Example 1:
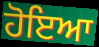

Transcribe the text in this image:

ਹੋਇਆ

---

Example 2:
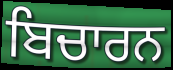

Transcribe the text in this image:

ਬਿਚਾਰਨ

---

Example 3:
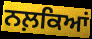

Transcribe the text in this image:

ਨਲ਼ਕਿਆਂ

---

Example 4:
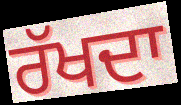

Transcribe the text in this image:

ਰੱਖਦਾ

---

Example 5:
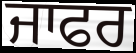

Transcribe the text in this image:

ਜਾਫਰ